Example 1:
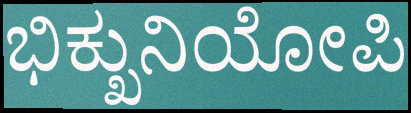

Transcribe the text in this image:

ಭಿಕ್ಖುನಿಯೋಪಿ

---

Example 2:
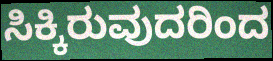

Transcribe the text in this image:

ಸಿಕ್ಕಿರುವುದರಿಂದ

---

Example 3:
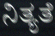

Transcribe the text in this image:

ನಿತ್ಯತೆ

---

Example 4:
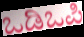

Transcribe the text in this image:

ಒಡಿಒಪಿ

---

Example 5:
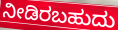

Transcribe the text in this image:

ನೀಡಿರಬಹುದು